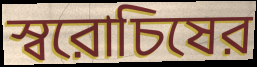
স্বরোচিষের